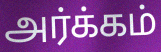
அர்க்கம்